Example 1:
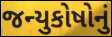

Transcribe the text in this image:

જન્યુકોષોનું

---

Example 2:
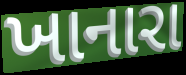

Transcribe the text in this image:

ખાનારા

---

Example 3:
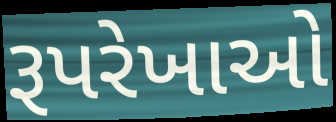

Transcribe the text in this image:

રૂપરેખાઓ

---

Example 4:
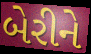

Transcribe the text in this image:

બેરીને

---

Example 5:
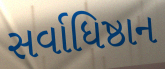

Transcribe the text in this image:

સર્વાધિષ્ઠાન